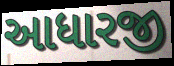
આધારજી